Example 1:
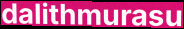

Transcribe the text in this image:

dalithmurasu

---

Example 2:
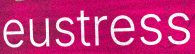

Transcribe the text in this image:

eustress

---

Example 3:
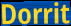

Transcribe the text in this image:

Dorrit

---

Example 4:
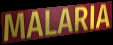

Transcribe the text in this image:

MALARIA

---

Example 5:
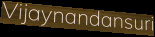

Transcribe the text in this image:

Vijaynandansuri